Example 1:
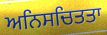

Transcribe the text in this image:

ਅਨਿਸਚਿਤਤਾ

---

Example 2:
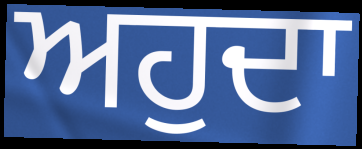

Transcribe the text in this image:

ਅਹੁਦਾ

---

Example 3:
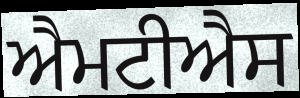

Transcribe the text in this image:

ਐਮਟੀਐਸ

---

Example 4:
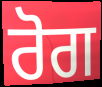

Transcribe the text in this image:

ਰੋਗ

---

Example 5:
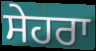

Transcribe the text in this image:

ਸੇਹਰਾ